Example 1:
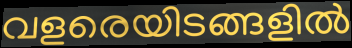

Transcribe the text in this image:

വളരെയിടങ്ങളിൽ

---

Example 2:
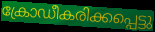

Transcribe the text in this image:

ക്രോഡീകരിക്കപ്പെട്ടു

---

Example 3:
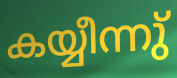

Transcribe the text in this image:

കയ്യീന്നു്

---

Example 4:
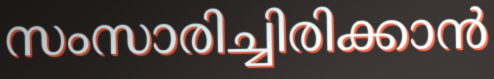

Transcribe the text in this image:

സംസാരിച്ചിരിക്കാൻ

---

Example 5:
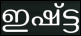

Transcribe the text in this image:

ഇഷ്ട്ട